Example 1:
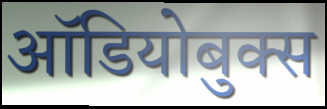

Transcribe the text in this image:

ऑडियोबुक्स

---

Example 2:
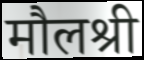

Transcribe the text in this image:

मौलश्री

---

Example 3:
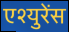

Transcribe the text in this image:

एश्युरेंस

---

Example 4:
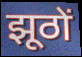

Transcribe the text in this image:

झूठों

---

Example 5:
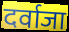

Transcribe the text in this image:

दर्वाजा